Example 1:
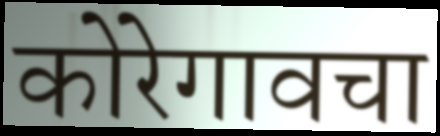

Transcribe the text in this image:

कोरेगावचा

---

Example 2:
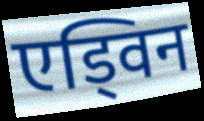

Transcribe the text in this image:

एड्विन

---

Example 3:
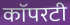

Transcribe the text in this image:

कॉपरटी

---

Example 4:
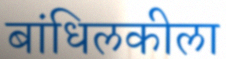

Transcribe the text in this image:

बांधिलकीला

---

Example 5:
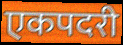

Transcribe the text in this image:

एकपदरी